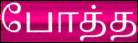
போத்த